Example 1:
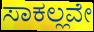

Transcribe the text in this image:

ಸಾಕಲ್ಲವೇ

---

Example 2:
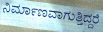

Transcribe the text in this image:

ನಿರ್ಮಾಣವಾಗುತ್ತಿದ್ದರೆ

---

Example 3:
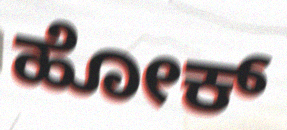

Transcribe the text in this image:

ಹೋಕ್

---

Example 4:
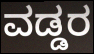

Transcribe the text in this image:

ವಡ್ಡರ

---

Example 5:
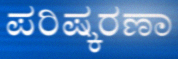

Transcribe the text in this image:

ಪರಿಷ್ಕರಣಾ